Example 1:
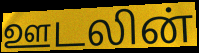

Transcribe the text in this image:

ஊடலின்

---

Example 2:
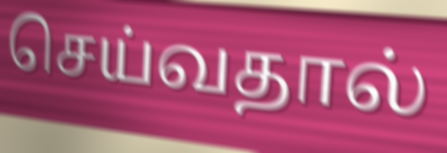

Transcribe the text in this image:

செய்வதால்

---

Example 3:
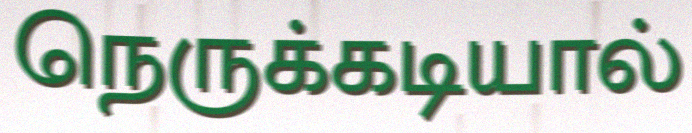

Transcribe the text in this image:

நெருக்கடியால்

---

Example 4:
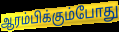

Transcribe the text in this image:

ஆரம்பிக்கும்போது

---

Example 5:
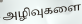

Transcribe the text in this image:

அழிவுகளை